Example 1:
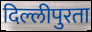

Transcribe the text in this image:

दिल्लीपुरता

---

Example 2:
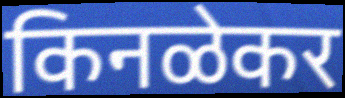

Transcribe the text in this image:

किनळेकर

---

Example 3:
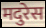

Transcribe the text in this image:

मदुरेस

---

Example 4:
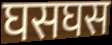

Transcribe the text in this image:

घसघस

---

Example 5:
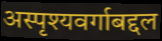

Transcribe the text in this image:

अस्पृश्यवर्गाबद्दल